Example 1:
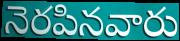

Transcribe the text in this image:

నెరపినవారు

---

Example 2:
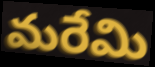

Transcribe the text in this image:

మరేమి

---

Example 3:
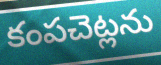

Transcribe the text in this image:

కంపచెట్లను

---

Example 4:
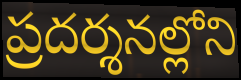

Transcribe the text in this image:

ప్రదర్శనల్లోని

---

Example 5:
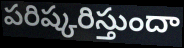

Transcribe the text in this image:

పరిష్కరిస్తుందా